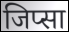
जिप्सा